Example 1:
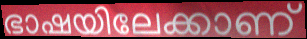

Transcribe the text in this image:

ഭാഷയിലേക്കാണ്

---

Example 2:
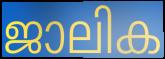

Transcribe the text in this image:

ജാലിക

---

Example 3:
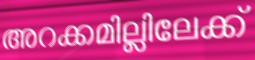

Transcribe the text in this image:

അറക്കമില്ലിലേക്ക്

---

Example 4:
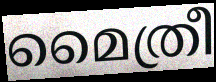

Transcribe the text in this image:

മൈത്രീ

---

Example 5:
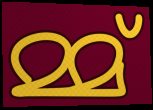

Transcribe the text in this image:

മ്മ്